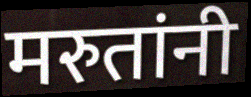
मरुतांनी